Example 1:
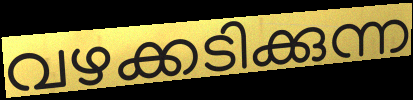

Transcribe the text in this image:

വഴക്കടിക്കുന്ന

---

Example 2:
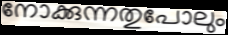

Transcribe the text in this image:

നോക്കുന്നതുപോലും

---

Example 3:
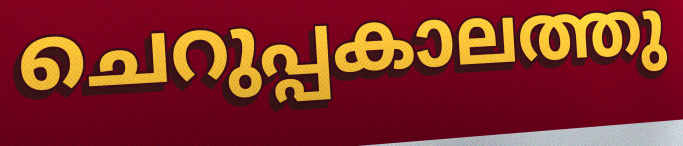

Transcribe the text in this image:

ചെറുപ്പകാലത്തു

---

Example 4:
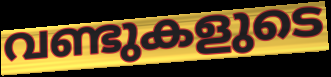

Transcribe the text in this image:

വണ്ടുകളുടെ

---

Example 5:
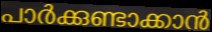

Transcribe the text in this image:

പാർക്കുണ്ടാക്കാൻ